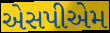
એસપીએમ